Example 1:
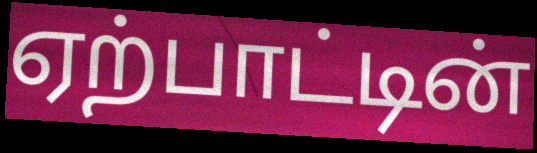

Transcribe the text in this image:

ஏற்பாட்டின்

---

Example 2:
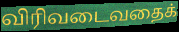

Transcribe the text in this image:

விரிவடைவதைக்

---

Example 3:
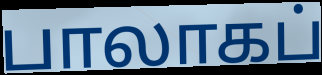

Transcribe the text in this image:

பாலாகப்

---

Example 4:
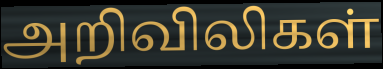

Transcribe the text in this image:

அறிவிலிகள்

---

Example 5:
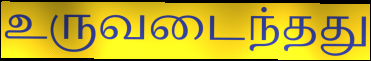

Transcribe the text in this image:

உருவடைந்தது